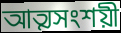
আত্মসংশয়ী